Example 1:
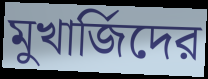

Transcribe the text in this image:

মুখার্জিদের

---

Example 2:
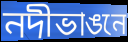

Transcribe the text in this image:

নদীভাঙনে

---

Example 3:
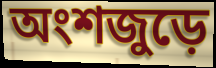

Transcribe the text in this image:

অংশজুড়ে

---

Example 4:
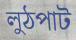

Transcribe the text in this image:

লুঠপাট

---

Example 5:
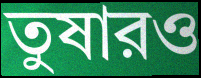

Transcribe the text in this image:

তুষারও